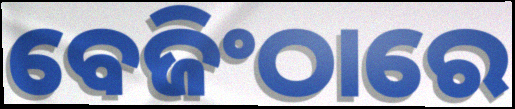
ବେଜିଂଠାରେ